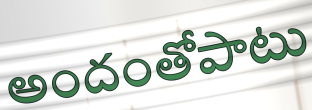
అందంతోపాటు